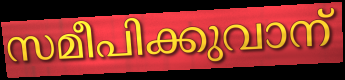
സമീപിക്കുവാന്